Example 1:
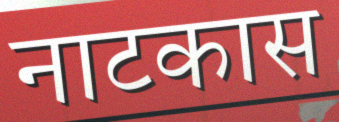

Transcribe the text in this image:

नाटकास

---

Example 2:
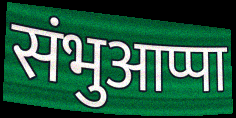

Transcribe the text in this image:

संभुआप्पा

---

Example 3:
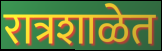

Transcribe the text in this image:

रात्रशाळेत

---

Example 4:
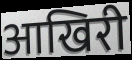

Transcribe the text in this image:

आखिरी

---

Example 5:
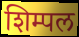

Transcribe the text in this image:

शिम्पल